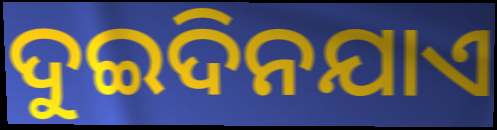
ଦୁଇଦିନଯାଏ